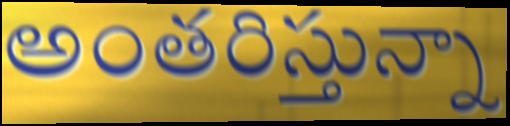
అంతరిస్తున్నా